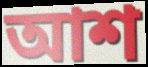
আশ